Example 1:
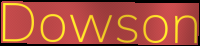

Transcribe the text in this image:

Dowson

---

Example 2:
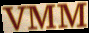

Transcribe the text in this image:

VMM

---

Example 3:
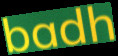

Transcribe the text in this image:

badh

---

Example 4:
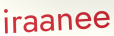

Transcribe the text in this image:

iraanee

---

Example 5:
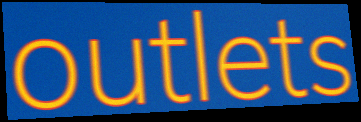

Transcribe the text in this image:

outlets